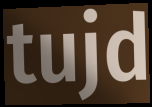
tujd